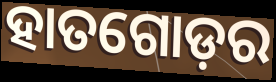
ହାତଗୋଡ଼ର